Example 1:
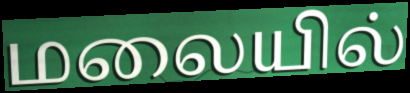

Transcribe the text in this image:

மலையில்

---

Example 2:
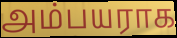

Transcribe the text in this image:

அம்பயராக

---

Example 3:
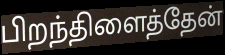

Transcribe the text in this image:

பிறந்திளைத்தேன்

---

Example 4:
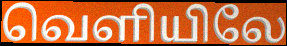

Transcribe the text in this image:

வெளியிலே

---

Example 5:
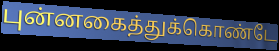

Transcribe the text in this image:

புன்னகைத்துக்கொண்டே